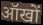
ऑखों